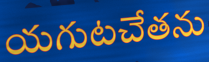
యగుటచేతను